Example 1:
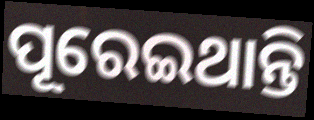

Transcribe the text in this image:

ପୂରେଇଥାନ୍ତି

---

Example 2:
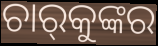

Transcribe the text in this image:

ଚାର୍‌କୁଙ୍କର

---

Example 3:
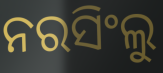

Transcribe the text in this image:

ନରସିଂଲୁ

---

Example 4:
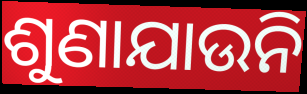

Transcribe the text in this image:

ଶୁଣାଯାଉନି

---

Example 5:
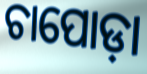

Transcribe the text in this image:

ଚାପୋଡ଼ା